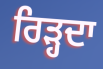
ਰਿੜ੍ਹਦਾ